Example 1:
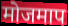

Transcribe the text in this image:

मोजमाप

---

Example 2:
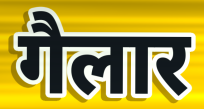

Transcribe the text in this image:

गैलार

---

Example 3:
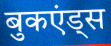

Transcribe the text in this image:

बुकएंड्स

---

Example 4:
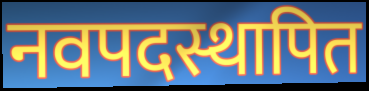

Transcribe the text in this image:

नवपदस्थापित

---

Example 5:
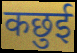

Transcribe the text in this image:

कछुई